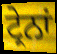
ਟ੍ਰੇਨਾਂ